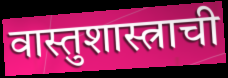
वास्तुशास्त्राची